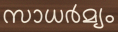
സാധർമ്യം